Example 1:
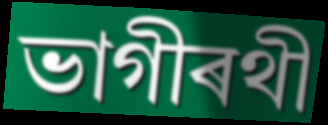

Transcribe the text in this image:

ভাগীৰথী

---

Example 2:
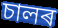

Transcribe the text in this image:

চালৰ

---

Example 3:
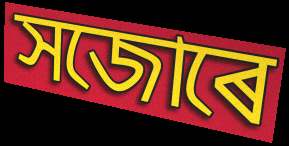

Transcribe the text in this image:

সজোৰে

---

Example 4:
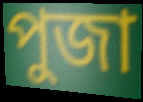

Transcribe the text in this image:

পুজা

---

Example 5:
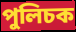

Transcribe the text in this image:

পুলিচক